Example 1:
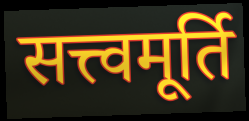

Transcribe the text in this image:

सत्त्वमूर्ति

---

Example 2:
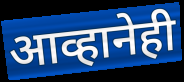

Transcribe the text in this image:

आव्हानेही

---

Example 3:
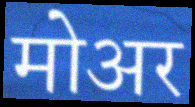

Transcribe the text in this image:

मोअर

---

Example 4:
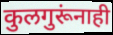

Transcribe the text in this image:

कुलगुरूंनाही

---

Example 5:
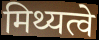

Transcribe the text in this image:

मिथ्यत्वे